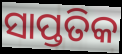
ସାପ୍ତତିକ